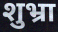
शुभ्रा